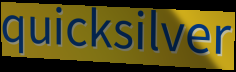
quicksilver